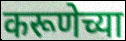
करूणेच्या